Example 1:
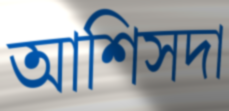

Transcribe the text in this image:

আশিসদা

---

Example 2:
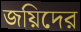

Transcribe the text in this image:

জয়িদের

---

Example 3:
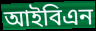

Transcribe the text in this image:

আইবিএন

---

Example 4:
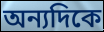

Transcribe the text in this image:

অন্যদিকে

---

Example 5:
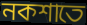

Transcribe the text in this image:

নকশাতে